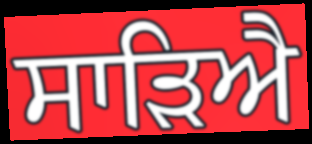
ਸਾੜਿਐ